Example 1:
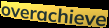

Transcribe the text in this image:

overachieve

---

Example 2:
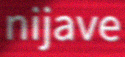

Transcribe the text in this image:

nijave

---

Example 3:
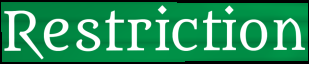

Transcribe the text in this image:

Restriction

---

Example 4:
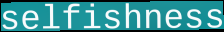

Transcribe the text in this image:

selfishness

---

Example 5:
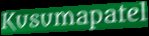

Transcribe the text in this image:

Kusumapatel